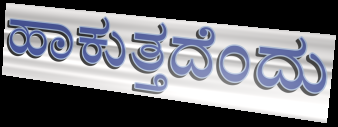
ಹಾಕುತ್ತದೆಂದು